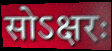
सोऽक्षरः